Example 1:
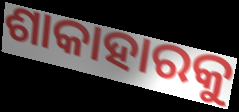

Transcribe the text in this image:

ଶାକାହାରକୁ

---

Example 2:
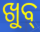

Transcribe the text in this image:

ଖୁବ୍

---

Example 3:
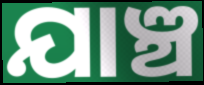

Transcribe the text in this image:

ଯାଞ୍ଚ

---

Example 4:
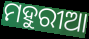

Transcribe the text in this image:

ମହୁରୀଆ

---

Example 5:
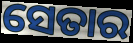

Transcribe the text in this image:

ସେତାର